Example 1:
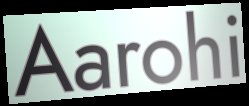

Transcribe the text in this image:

Aarohi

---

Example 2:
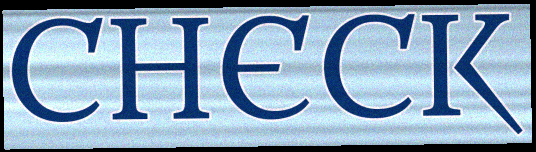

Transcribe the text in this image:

CHECK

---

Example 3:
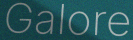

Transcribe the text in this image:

Galore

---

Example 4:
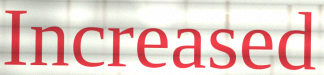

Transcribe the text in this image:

Increased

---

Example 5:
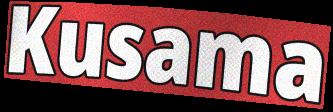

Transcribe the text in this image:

Kusama